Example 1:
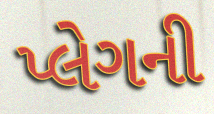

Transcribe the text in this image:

પ્લેગની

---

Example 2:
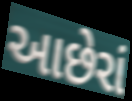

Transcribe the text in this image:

આછેરાં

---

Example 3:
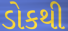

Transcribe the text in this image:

ડોકથી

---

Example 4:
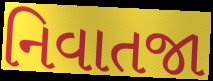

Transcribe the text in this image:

નિવાતજા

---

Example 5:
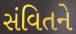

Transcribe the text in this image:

સંવિતને